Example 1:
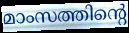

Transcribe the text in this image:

മാംസത്തിന്റെ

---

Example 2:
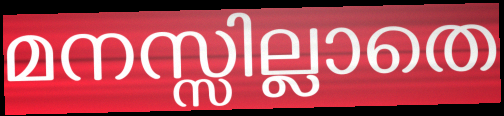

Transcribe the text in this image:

മനസ്സില്ലാതെ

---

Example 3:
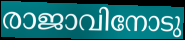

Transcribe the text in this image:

രാജാവിനോടു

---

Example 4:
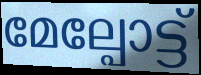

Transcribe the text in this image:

മേല്പോട്ട്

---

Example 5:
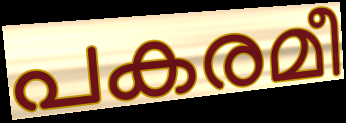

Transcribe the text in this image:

പകരമീ